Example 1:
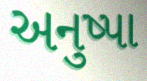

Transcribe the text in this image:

અનુષ્પા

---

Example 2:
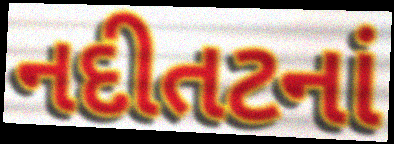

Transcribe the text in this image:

નદીતટનાં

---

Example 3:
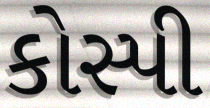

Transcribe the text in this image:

કોસ્પી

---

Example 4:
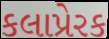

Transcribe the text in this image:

કલાપ્રેરક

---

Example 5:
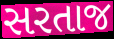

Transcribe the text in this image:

સરતાજ